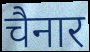
चैनार